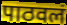
पाठवलं